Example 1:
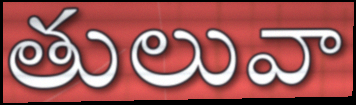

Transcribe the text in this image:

తులువా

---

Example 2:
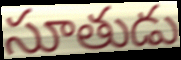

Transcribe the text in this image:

సూతుడు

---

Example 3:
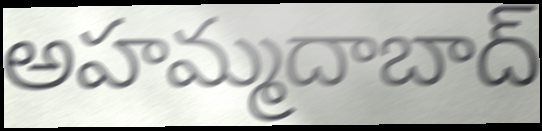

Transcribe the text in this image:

అహమ్మదాబాద్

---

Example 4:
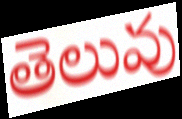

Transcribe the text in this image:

తెలువు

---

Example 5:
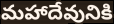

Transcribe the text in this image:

మహాదేవునికి